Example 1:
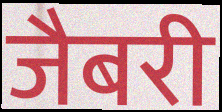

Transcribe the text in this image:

जैबरी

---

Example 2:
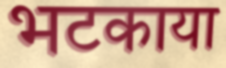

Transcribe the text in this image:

भटकाया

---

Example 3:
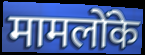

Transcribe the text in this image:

मामलोंके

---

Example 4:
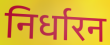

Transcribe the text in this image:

निर्धारन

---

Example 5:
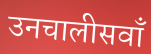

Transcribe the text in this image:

उनचालीसवाँ